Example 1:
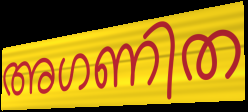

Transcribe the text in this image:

അഗണിത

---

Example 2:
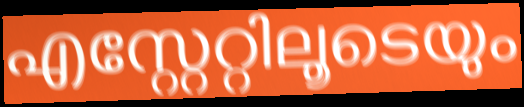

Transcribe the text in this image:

എസ്റ്റേറ്റിലൂടെയും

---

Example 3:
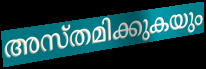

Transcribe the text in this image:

അസ്തമിക്കുകയും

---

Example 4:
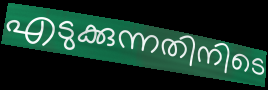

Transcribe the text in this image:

എടുക്കുന്നതിനിടെ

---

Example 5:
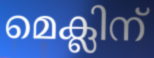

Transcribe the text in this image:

മെക്ലിന്